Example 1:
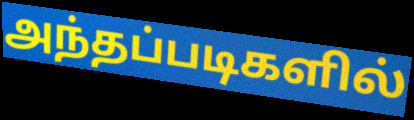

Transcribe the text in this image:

அந்தப்படிகளில்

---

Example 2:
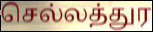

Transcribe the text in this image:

செல்லத்துர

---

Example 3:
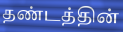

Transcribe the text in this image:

தண்டத்தின்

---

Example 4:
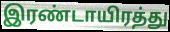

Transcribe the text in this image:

இரண்டாயிரத்து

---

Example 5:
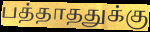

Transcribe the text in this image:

பத்தாததுக்கு